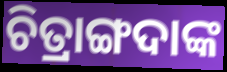
ଚିତ୍ରାଙ୍ଗଦାଙ୍କ